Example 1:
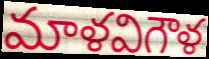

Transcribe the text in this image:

మాళవిగౌళ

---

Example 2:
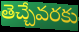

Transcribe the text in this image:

తెచ్చేవరకు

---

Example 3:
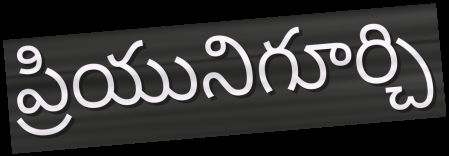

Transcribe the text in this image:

ప్రియునిగూర్చి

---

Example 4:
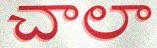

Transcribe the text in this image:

చాలా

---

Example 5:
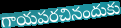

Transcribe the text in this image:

గాయపరచినందుకు